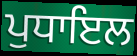
ਪੁਧਾਇਲ